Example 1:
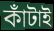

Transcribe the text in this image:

কাঁটাই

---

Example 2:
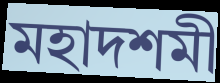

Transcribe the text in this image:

মহাদশমী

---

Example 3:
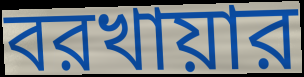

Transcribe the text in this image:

বরখায়ার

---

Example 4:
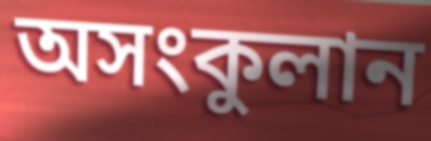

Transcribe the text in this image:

অসংকুলান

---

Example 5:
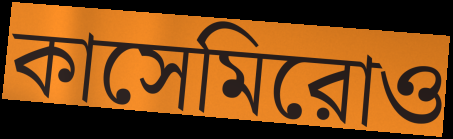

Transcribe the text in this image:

কাসেমিরোও